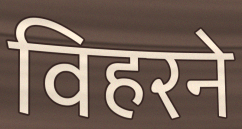
विहरने